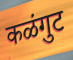
कळंगुट